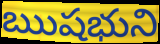
ఋషభుని